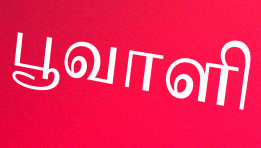
பூவாளி